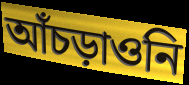
আঁচড়াওনি